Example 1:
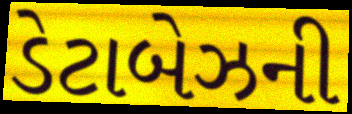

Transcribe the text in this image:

ડેટાબેઝની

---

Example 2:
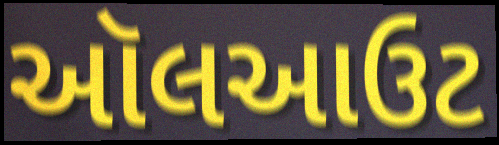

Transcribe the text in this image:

ઑલઆઉટ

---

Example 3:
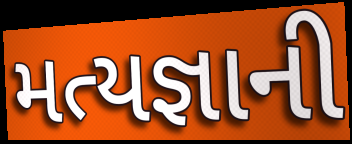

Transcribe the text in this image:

મત્યજ્ઞાની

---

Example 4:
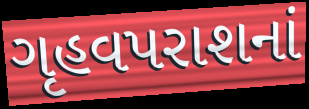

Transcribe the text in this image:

ગૃહવપરાશનાં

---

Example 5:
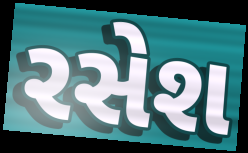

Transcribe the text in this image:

રસેશ